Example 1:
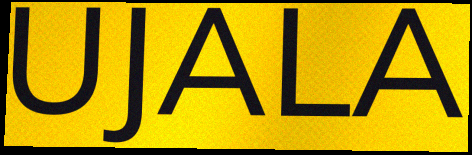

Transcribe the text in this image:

UJALA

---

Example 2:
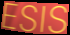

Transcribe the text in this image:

ESIS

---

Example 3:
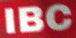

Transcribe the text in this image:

IBC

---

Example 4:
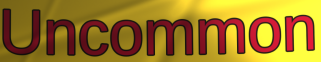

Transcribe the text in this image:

Uncommon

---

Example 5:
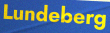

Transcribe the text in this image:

Lundeberg